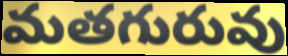
మతగురువు